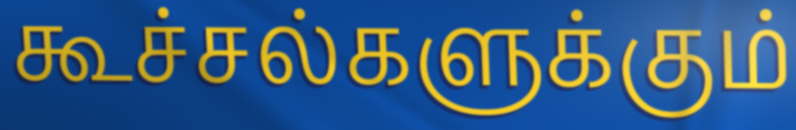
கூச்சல்களுக்கும்